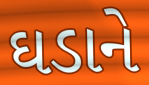
ઘડાને